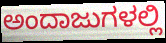
ಅಂದಾಜುಗಳಲ್ಲಿ